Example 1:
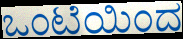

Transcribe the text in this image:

ಒಂಟೆಯಿಂದ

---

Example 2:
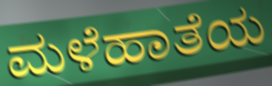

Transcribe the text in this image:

ಮಳೆಹಾತೆಯ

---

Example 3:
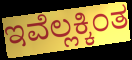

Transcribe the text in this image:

ಇವೆಲ್ಲಕ್ಕಿಂತ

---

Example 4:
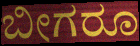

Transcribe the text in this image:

ಬೀಗರೂ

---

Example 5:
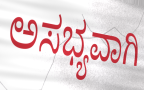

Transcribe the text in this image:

ಅಸಭ್ಯವಾಗಿ